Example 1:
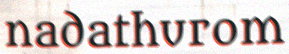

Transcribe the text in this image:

nadathurom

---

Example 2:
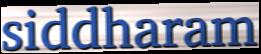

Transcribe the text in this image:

siddharam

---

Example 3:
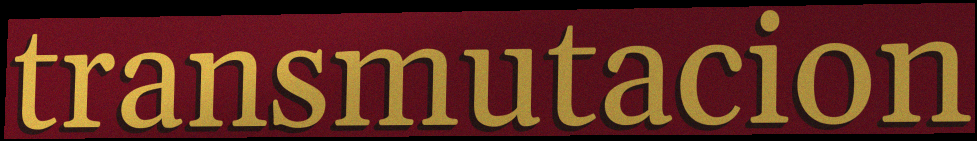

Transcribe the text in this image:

transmutacion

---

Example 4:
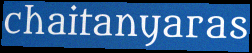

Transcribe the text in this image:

chaitanyaras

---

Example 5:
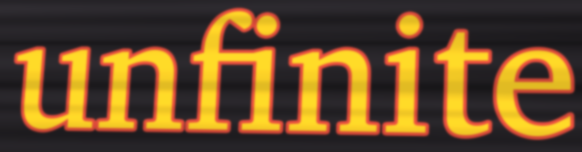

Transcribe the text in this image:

unfinite